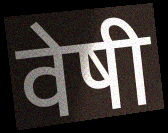
वेषी